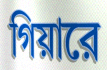
গিয়ারে